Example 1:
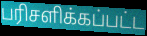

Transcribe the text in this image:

பரிசளிக்கப்பட்ட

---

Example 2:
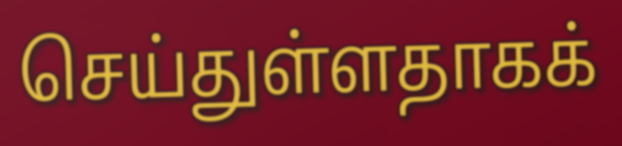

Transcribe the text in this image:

செய்துள்ளதாகக்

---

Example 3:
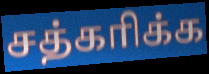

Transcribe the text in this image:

சத்கரிக்க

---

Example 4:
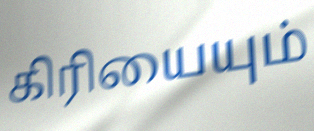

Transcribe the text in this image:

கிரியையும்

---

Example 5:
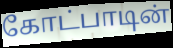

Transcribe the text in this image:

கோட்பாடின்